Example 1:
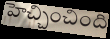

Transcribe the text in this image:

హెచ్చించింది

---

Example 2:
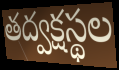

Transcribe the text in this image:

తద్వక్షస్థల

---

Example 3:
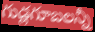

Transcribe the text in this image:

గుడ్లగూబలన్నీ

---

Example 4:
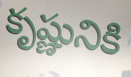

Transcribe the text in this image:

కృష్ణునికి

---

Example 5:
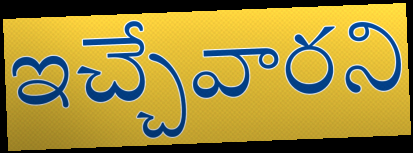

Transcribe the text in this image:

ఇచ్చేవారని